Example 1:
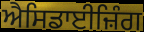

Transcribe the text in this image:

ਐਸਿਡਾਈਜ਼ਿੰਗ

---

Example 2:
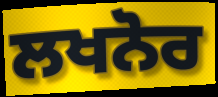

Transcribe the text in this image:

ਲਖਨੋਰ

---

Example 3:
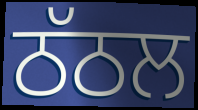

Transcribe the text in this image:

ਠੱਠਲ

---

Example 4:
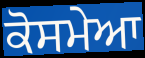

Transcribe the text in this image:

ਕੋਸਮੇਆ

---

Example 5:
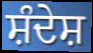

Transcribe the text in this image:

ਸ਼ੰਦੇਸ਼